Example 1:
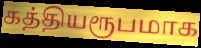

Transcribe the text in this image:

கத்தியரூபமாக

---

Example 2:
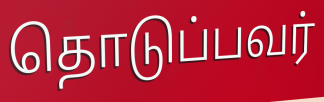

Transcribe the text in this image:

தொடுப்பவர்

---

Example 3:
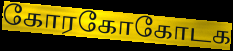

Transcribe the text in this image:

கோரகோகோடக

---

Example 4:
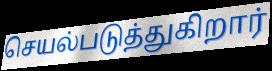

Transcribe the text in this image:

செயல்படுத்துகிறார்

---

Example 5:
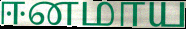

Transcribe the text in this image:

ஈனமாய